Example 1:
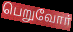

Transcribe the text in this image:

பெறுவோர்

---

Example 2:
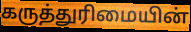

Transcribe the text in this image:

கருத்துரிமையின்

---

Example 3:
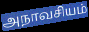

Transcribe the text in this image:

அநாவசியம்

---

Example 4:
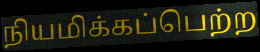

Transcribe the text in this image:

நியமிக்கப்பெற்ற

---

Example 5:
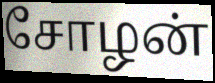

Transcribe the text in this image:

சோழன்